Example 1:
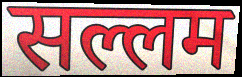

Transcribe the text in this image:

सल्लम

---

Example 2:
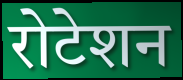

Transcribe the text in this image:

रोटेशन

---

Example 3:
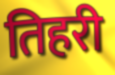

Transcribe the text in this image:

तिहरी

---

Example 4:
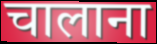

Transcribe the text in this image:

चालाना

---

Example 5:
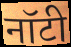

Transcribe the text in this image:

नॉटी